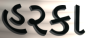
હરકા